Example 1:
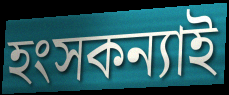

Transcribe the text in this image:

হংসকন্যাই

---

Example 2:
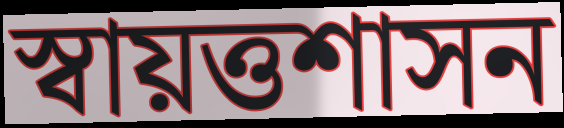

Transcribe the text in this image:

স্বায়ত্তশাসন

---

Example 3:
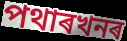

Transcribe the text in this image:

পথাৰখনৰ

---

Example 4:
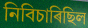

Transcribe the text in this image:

নিবিচাৰিছিল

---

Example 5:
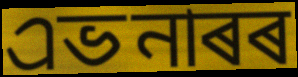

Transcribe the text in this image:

এভনাৰৰ